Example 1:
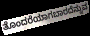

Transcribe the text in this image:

ತೊಂದರೆಯಾಗಬಾರದೆನ್ನುವ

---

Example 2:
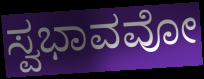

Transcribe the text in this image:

ಸ್ವಭಾವವೋ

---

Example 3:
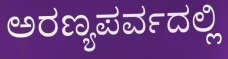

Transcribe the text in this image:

ಅರಣ್ಯಪರ್ವದಲ್ಲಿ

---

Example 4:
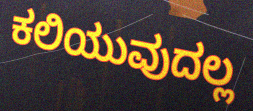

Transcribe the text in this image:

ಕಲಿಯುವುದಲ್ಲ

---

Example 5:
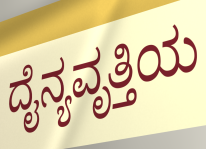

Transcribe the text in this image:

ದೈನ್ಯವೃತ್ತಿಯ